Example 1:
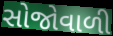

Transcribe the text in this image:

સોજોવાળી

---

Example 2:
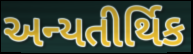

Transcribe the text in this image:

અન્યતીર્થિક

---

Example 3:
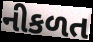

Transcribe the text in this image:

નીકળત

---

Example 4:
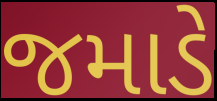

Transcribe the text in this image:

જમાડે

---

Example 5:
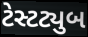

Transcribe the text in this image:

ટેસ્ટટ્યુબ